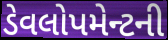
ડેવલોપમેન્ટની